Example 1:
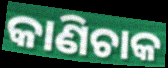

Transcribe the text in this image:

କାଣିଚାକ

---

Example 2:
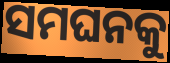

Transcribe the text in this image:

ସମଘନକୁ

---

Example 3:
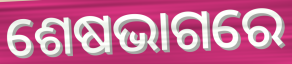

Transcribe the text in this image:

ଶେଷଭାଗରେ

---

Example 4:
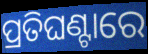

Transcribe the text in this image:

ପ୍ରତିଘଣ୍ଟାରେ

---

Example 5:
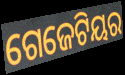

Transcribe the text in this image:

ଗେଜେଟିୟର